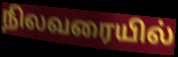
நிலவரையில்